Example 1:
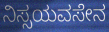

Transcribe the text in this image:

ನಿಸ್ಸಯವಸೇನ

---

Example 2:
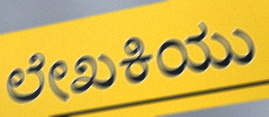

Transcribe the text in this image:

ಲೇಖಕಿಯು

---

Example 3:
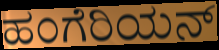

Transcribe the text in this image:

ಹಂಗೆರಿಯನ್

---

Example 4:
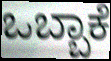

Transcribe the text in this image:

ಒಬ್ಬಾಕೆ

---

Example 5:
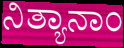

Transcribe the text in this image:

ನಿತ್ಯಾನಾಂ